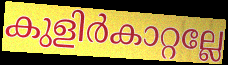
കുളിർകാറ്റല്ലേ